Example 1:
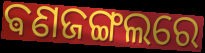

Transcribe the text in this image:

ଵଣଜଙ୍ଗଲରେ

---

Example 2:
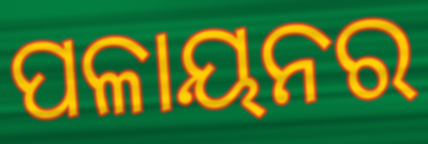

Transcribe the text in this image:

ପଳାୟନର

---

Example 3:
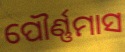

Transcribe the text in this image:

ପୌର୍ଣ୍ଣମାସ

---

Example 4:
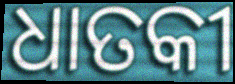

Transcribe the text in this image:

ଧାତକୀ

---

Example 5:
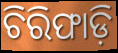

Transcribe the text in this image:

ଚିରିଫାଡ଼ି